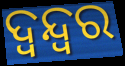
ଦ୍ଵନ୍ଦ୍ୱର